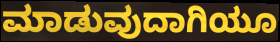
ಮಾಡುವುದಾಗಿಯೂ